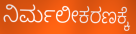
ನಿರ್ಮಲೀಕರಣಕ್ಕೆ